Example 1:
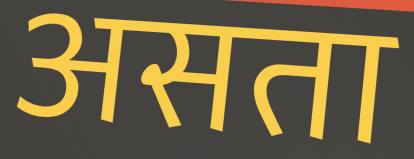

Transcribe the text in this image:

असता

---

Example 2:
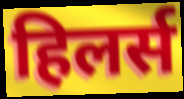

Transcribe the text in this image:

हिलर्स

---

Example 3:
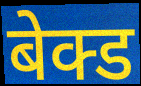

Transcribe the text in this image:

बेक्ड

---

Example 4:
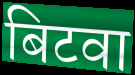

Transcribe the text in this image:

बिटवा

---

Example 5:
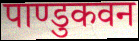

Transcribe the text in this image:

पाण्डुकवन